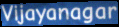
Vijayanagar